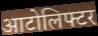
आटोलिफ्टर